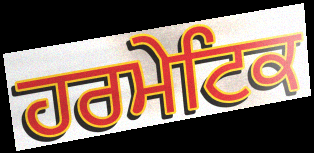
ਹਰਮੇਟਿਕ